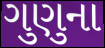
ગુણુના